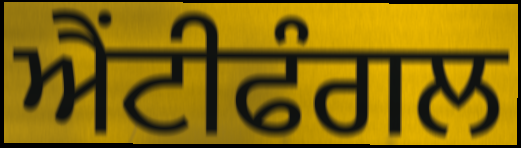
ਐਂਟੀਫੰਗਲ